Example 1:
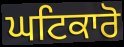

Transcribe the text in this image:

ਘਟਿਕਾਰੋ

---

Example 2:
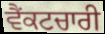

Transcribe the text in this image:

ਵੈਂਕਟਚਾਰੀ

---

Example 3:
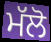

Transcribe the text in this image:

ਮੱਲੋ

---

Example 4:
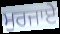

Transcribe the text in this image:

ਮੁਰਜਾਏ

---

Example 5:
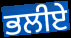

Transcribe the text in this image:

ਭਲੀਏ